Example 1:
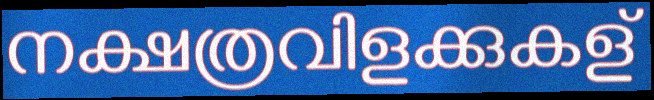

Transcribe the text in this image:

നക്ഷത്രവിളക്കുകള്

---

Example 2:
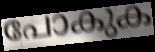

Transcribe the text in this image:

പോകുക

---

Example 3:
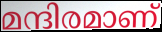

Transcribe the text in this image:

മന്ദിരമാണ്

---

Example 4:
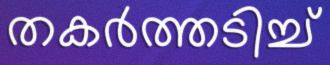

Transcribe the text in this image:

തകർത്തടിച്ച്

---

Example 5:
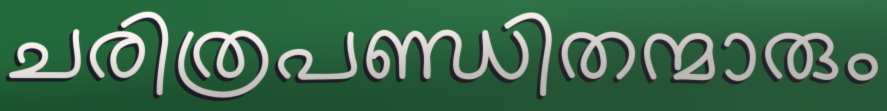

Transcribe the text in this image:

ചരിത്രപണ്ഡിതന്മാരും